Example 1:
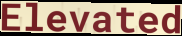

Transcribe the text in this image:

Elevated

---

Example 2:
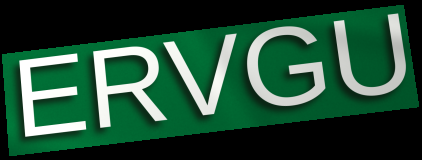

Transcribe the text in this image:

ERVGU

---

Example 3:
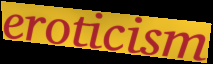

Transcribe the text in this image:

eroticism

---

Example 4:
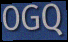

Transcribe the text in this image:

OGQ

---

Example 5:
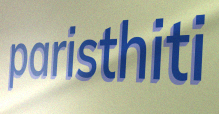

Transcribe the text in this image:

paristhiti